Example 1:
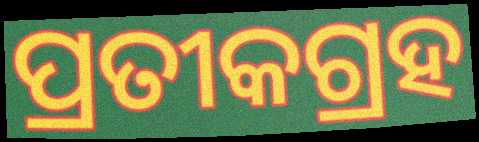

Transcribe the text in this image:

ପ୍ରତୀକଗ୍ରହ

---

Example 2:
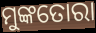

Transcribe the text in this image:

ମୁଙ୍କତୋରା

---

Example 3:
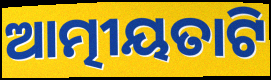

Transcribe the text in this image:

ଆତ୍ମୀୟତାଟି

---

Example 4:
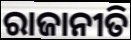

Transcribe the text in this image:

ରାଜାନୀତି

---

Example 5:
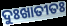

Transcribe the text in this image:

ଦୁଃଖାତୀତଃ